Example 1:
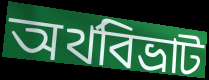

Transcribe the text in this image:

অর্থবিভ্রাট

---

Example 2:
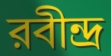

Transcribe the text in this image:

রবীন্দ্র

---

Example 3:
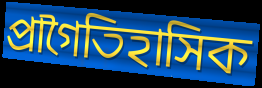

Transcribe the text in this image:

প্রাগৈতিহাসিক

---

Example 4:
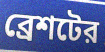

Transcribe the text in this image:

ব্রেশটের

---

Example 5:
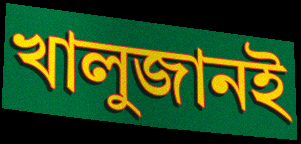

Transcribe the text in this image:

খালুজানই